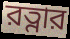
রত্নার